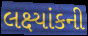
લક્ષ્યાંકની